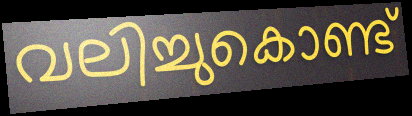
വലിച്ചുകൊണ്ട്